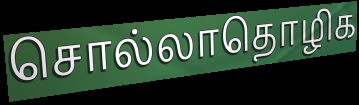
சொல்லாதொழிக